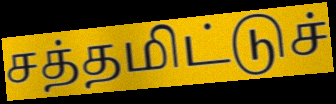
சத்தமிட்டுச்